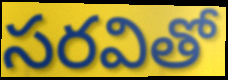
సరవితో